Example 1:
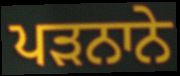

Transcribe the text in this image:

ਪੜਨਾਨੇ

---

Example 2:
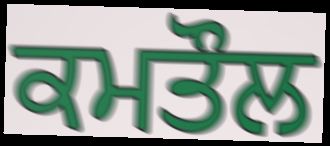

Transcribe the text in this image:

ਕਮਤੌਲ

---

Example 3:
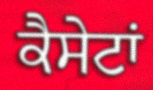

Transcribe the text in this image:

ਕੈਸੇਟਾਂ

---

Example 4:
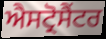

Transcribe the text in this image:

ਐਸਟ੍ਰੋਸੈਂਟਰ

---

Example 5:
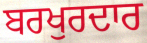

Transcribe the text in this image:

ਬਰਖੁਰਦਾਰ